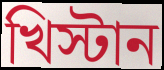
খিস্টান